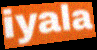
iyala